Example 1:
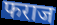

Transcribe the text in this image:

फराज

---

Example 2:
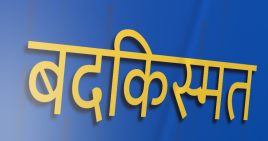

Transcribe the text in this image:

बदकिस्‍मत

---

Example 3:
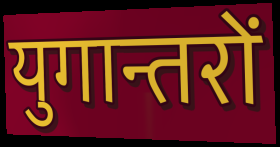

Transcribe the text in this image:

युगान्तरों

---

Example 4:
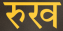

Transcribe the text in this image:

रुख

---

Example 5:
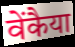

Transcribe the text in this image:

वेंकैया